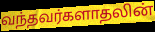
வந்தவர்களாதலின்